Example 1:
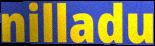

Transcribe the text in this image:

nilladu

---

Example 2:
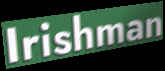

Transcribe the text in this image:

Irishman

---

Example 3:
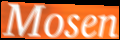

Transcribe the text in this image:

Mosen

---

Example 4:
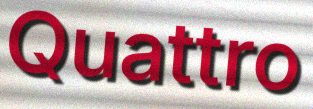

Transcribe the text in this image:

Quattro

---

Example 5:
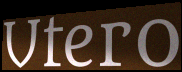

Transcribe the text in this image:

Utero